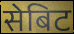
सेबिट